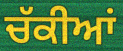
ਚੱਕੀਆਂ